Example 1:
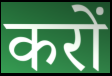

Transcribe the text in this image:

करों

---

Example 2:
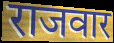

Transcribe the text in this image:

राजवार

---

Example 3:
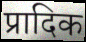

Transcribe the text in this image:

प्रादिक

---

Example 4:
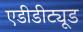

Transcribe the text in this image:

एडीडीट्यूड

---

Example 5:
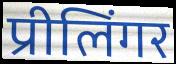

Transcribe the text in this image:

प्रीलिंगर